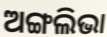
ଅଙ୍ଗଲିଭା